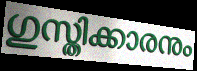
ഗുസ്തിക്കാരനും